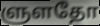
ளுளதோ